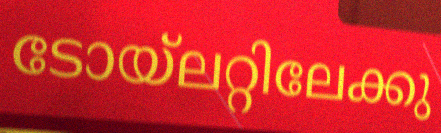
ടോയ്ലറ്റിലേക്കു